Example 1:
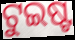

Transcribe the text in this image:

ଟୁଇଷ୍ଟ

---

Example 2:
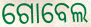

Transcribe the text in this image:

ଗୋବେଲ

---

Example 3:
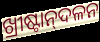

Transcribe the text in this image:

ଖ୍ରୀଷ୍ଟାନ୍‌ଦଳନ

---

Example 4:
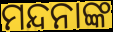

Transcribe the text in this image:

ମନ୍ଦନାଙ୍କ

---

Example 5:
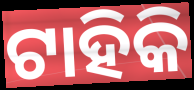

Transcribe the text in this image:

ଟାହିକି